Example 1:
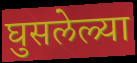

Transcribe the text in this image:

घुसलेल्या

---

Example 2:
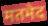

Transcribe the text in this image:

मतभेद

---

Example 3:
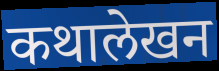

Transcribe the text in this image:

कथालेखन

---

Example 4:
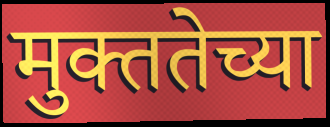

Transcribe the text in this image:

मुक्ततेच्या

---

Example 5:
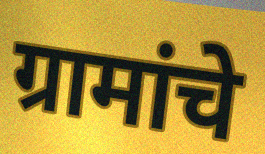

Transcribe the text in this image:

ग्रामांचे